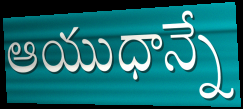
ఆయుధాన్నే